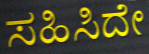
ಸಹಿಸಿದೇ